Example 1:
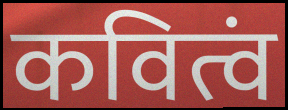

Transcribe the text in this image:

कवित्वं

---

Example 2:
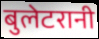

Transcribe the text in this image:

बुलेटरानी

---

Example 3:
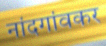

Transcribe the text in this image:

नांदगांवकर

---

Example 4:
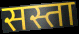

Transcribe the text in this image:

सस्‍ता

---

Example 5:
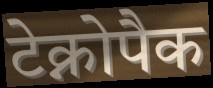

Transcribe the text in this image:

टेक्नोपैक